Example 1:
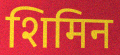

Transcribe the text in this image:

शिमिन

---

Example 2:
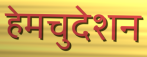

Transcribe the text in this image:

हेमचुदेशन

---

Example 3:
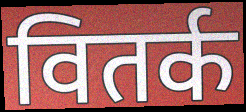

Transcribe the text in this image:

वितर्क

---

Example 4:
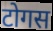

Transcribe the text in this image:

टोगस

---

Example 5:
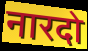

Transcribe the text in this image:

नारदो